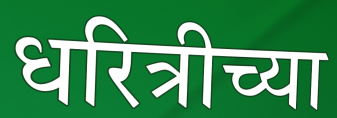
धरित्रीच्या